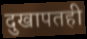
दुखापतही